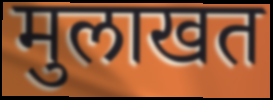
मुलाखत